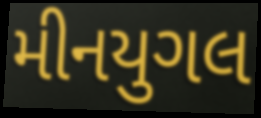
મીનયુગલ